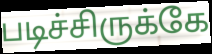
படிச்சிருக்கே